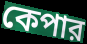
কেপার